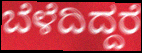
ಬೆಳೆದಿದ್ದರೆ